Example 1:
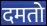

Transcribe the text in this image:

दमतो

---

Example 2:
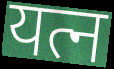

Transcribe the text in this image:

यत्न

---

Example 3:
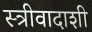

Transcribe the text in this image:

स्त्रीवादाशी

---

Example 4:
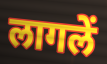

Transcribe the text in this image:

लागलें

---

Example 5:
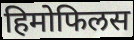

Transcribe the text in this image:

हिमोफिलस